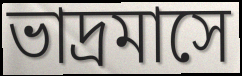
ভাদ্রমাসে